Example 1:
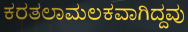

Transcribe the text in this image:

ಕರತಲಾಮಲಕವಾಗಿದ್ದವು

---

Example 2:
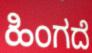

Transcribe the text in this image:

ಹಿಂಗದೆ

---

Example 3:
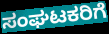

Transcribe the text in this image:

ಸಂಘಟಕರಿಗೆ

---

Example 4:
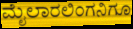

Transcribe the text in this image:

ಮೈಲಾರಲಿಂಗನಿಗೂ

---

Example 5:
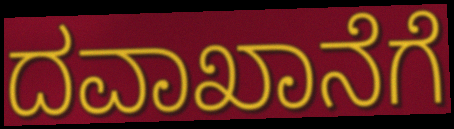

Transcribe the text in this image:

ದವಾಖಾನೆಗೆ